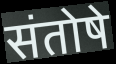
संतोषे